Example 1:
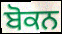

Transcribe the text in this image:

ਬੋਕਨ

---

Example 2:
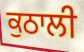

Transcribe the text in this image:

ਕੁਠਾਲੀ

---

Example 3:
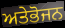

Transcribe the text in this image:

ਅਤੇਭੋਜਨ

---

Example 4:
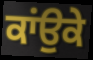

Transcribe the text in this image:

ਕਾਂਉਕੇ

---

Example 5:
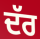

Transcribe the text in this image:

ਦੱਰ